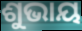
ଶୁଭାୟ